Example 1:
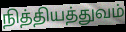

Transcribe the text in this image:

நித்தியத்துவம்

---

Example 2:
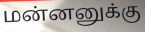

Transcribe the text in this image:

மன்னனுக்கு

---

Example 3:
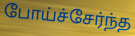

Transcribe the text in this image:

போய்ச்சேர்ந்த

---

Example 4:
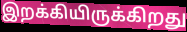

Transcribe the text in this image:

இறக்கியிருக்கிறது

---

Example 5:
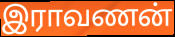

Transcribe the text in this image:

இராவணன்